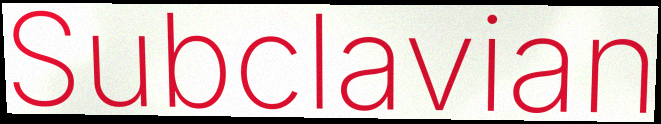
Subclavian